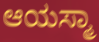
ಆಯಸ್ಮಾ